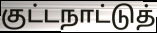
குட்டநாட்டுத்